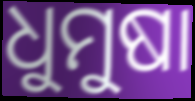
ଧୁମୁଷା